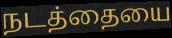
நடத்தையை